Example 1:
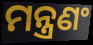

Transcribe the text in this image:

ମନ୍ତ୍ରଣଂ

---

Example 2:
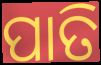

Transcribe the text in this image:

ପାତି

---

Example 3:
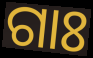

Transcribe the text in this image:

ଗାଃ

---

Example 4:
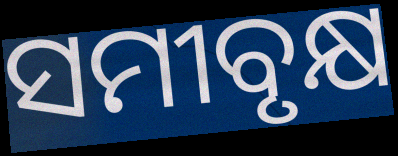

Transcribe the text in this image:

ସମୀବୃକ୍ଷ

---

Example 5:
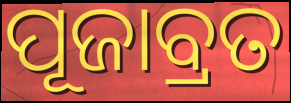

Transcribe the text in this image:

ପୂଜାବ୍ରତ